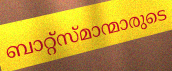
ബാറ്റ്സ്മാന്മാരുടെ